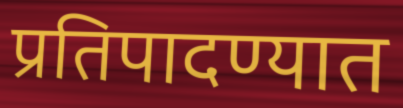
प्रतिपादण्यात